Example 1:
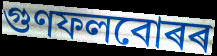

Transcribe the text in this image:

গুণফলবোৰৰ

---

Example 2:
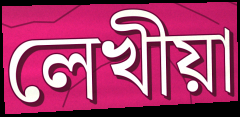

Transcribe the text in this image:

লেখীয়া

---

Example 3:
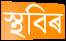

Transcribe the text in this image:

স্থবিৰ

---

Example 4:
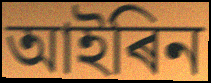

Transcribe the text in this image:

আইৰিন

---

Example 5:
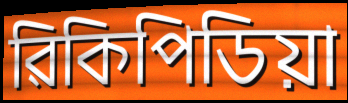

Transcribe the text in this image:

ৱিকিপিডিয়া